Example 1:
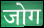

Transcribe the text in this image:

जोग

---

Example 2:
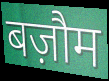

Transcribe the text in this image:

बज़ौम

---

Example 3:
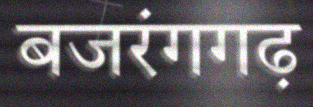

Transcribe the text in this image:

बजरंगगढ़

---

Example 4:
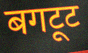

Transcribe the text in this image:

बगटूट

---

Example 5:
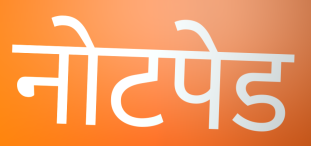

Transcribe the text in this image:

नोटपेड